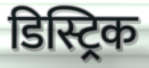
डिस्ट्रिक